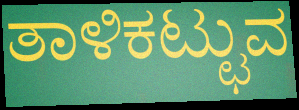
ತಾಳಿಕಟ್ಟುವ